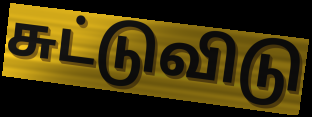
சுட்டுவிடு